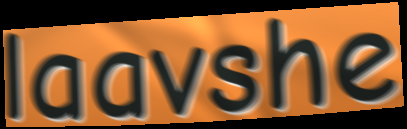
laavshe